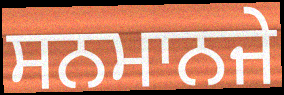
ਸਨਮਾਨਜੇ